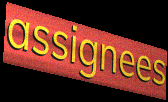
assignees